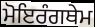
ਮੋਇਰੰਗਥੇਮ